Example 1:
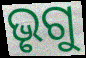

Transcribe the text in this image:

ଭୃଗୁ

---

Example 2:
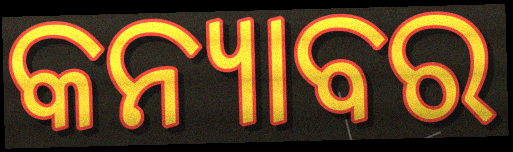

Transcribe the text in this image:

କନ୍ୟାବର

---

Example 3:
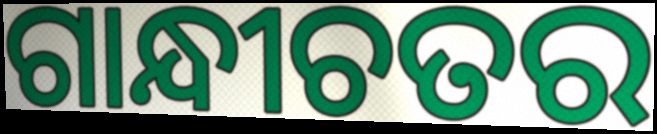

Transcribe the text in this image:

ଗାନ୍ଧୀଚତର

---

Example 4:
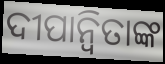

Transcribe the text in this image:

ଦୀପାନ୍ୱିତାଙ୍କ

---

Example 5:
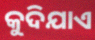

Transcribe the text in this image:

କୁଦିଯାଏ